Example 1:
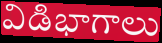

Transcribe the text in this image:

విడిభాగాలు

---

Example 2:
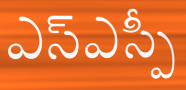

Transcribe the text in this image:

ఎస్ఎస్పీ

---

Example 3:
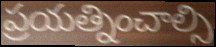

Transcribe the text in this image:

ప్రయత్నించాల్సి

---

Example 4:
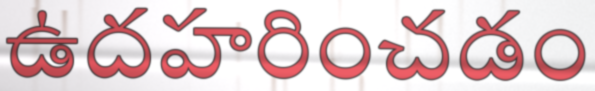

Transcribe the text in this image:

ఉదహరించడం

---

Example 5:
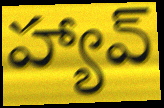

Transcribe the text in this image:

హ్యావ్